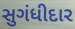
સુગંધીદાર